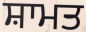
ਸ਼ਾਮਤ